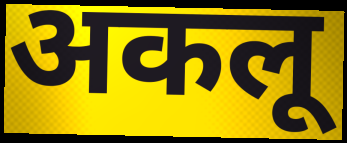
अकलू